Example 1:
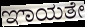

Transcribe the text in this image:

ಞಾಯತೇ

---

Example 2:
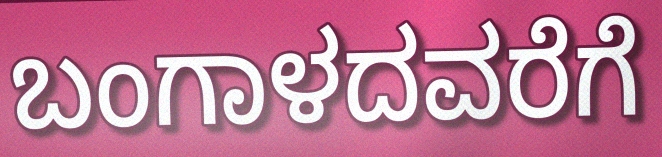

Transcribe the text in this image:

ಬಂಗಾಳದವರೆಗೆ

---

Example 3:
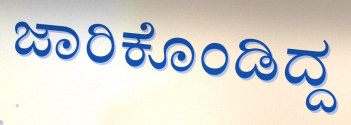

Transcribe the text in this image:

ಜಾರಿಕೊಂಡಿದ್ದ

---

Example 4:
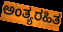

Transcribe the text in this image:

ಅಂತ್ಯರಹಿತ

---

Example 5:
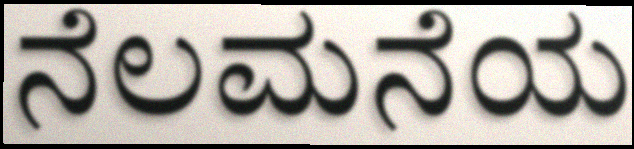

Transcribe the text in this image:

ನೆಲಮನೆಯ